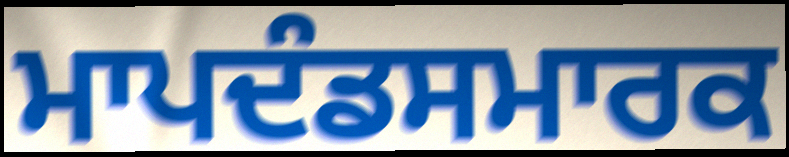
ਮਾਪਦੰਡਸਮਾਰਕ